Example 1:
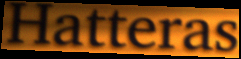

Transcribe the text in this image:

Hatteras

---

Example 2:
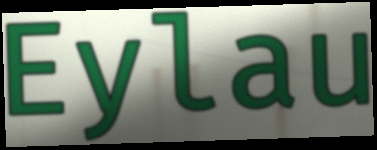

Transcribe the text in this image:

Eylau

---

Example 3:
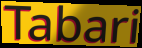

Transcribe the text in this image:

Tabari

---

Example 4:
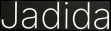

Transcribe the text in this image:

Jadida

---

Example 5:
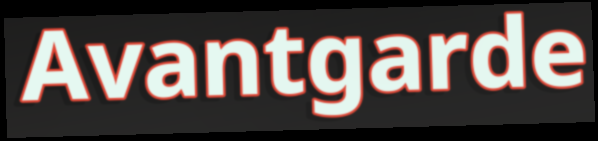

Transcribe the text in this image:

Avantgarde